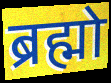
ब्रह्मो